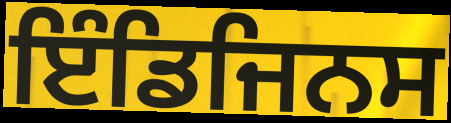
ਇੰਡਿਜਿਨਸ